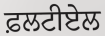
ਫ਼ਲਟੀਏਲ